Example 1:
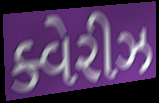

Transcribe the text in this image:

ક્વેરીઝ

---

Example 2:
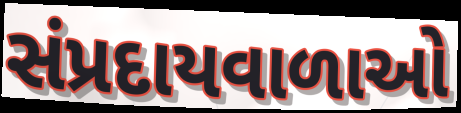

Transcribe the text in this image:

સંપ્રદાયવાળાઓ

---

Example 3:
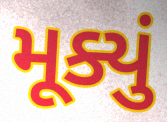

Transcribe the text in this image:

મૂક્યું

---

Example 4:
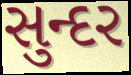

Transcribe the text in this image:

સુન્દર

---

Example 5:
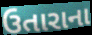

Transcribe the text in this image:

ઉતારાના